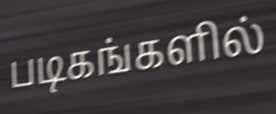
படிகங்களில்